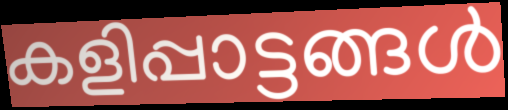
കളിപ്പാട്ടങ്ങൾ